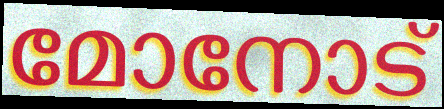
മോനോട്